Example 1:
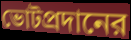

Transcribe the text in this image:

ভোটপ্রদানের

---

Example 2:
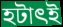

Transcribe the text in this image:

হটাৎই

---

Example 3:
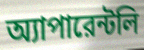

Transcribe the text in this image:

অ্যাপারেন্টলি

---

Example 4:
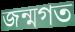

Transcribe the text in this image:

জন্মগত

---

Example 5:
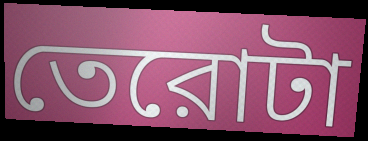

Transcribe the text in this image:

তেরোটা